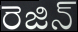
రెజిన్